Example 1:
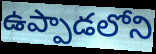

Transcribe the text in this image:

ఉప్పాడలోని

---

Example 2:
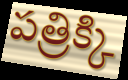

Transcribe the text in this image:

పత్రిక్కి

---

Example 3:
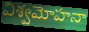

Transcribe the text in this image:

విశ్వమోహనా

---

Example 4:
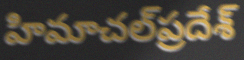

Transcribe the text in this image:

హిమాచల్‌ప్రదేశ్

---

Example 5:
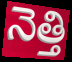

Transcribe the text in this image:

నెత్తి